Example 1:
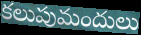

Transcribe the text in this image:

కలుపుమందులు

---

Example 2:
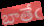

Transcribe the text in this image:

బాతేఁ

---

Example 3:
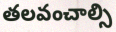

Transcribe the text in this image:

తలవంచాల్సి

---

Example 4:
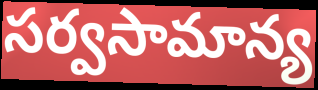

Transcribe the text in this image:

సర్వసామాన్య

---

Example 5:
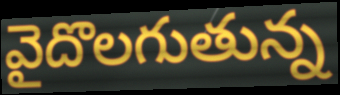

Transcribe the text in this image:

వైదొలగుతున్న